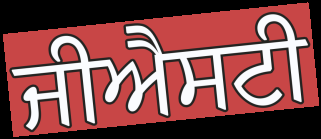
ਜੀਐਸਟੀ